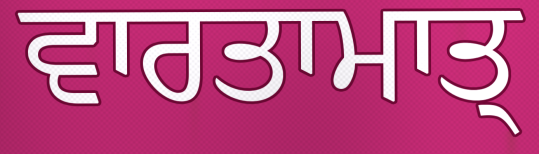
ਵਾਰਤਾਮਾਤ੍